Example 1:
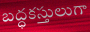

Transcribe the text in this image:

బద్ధకస్తులుగా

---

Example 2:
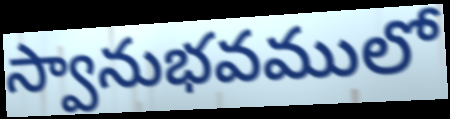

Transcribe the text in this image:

స్వానుభవములో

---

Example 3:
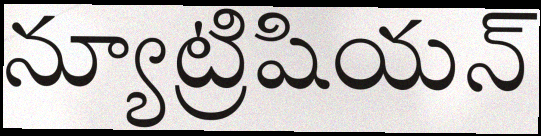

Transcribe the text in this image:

న్యూట్రిషియన్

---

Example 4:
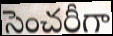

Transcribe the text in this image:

సెంచరీగా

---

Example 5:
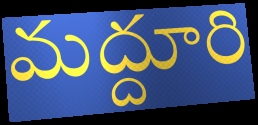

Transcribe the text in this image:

మద్దూరి